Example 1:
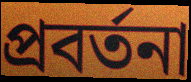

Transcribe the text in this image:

প্রবর্তনা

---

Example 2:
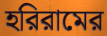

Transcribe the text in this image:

হরিরামের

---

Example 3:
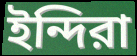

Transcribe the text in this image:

ইন্দিরা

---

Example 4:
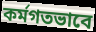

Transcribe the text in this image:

কর্মগতভাবে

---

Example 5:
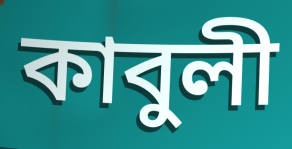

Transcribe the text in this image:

কাবুলী